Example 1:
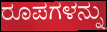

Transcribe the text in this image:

ರೂಪಗಳನ್ನು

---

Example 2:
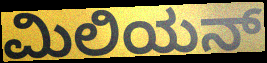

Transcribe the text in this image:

ಮಿಲಿಯನ್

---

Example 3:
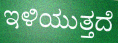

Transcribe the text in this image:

ಇಳಿಯುತ್ತದೆ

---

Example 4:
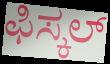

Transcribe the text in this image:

ಫಿಸ್ಕಲ್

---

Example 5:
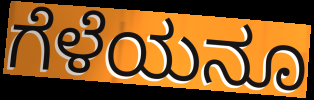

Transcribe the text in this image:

ಗೆಳೆಯನೂ